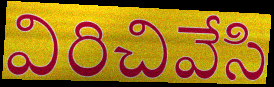
విరిచివేసి